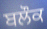
ਬਲੌਕ